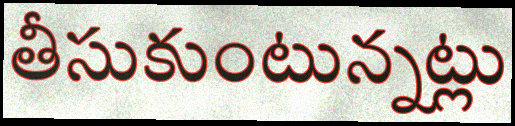
తీసుకుంటున్నట్లు